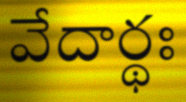
వేదార్థః